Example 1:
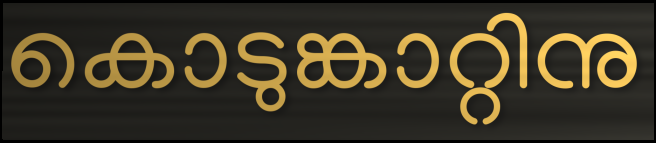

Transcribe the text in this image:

കൊടുങ്കാറ്റിനു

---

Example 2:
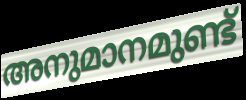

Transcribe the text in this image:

അനുമാനമുണ്ട്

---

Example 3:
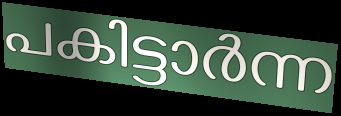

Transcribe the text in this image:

പകിട്ടാർന്ന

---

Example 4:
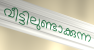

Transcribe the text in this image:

വീട്ടിലുണ്ടാക്കുന്ന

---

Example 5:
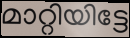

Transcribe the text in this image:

മാറ്റിയിട്ടേ